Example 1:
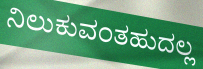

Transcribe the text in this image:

ನಿಲುಕುವಂತಹುದಲ್ಲ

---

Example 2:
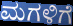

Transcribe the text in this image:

ಮಗಳಿಗೆ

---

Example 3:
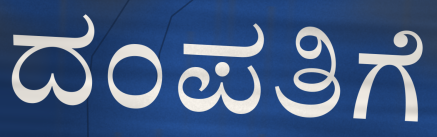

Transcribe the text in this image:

ದಂಪತಿಗೆ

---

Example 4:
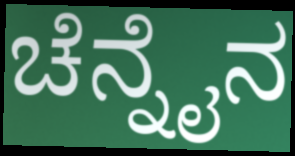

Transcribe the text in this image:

ಚೆನ್ನೈನ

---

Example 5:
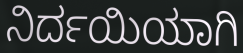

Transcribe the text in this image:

ನಿರ್ದಯಿಯಾಗಿ